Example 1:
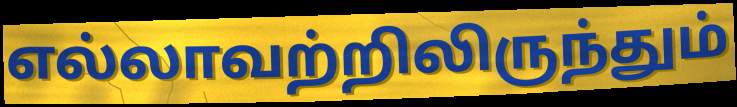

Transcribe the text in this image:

எல்லாவற்றிலிருந்தும்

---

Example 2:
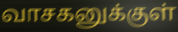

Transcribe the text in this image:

வாசகனுக்குள்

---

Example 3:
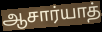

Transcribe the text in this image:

ஆசார்யாத்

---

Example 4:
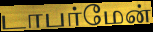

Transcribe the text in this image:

டாபர்மேன்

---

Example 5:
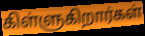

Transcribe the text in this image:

கிள்ளுகிறார்கள்